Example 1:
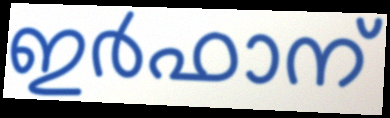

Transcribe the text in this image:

ഇർഫാന്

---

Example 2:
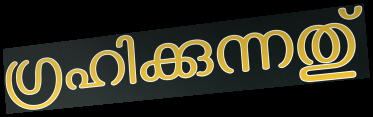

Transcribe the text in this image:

ഗ്രഹിക്കുന്നതു്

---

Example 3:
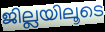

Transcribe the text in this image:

ജില്ലയിലൂടെ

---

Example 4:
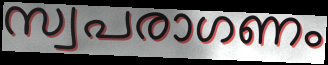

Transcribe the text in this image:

സ്വപരാഗണം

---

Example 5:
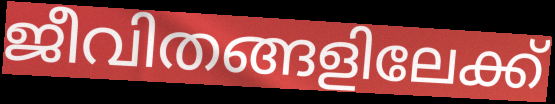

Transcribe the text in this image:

ജീവിതങ്ങളിലേക്ക്